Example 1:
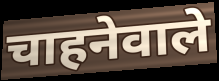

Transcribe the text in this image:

चाहनेवाले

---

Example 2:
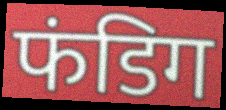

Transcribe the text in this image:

फंडिग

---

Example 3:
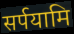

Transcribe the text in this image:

सर्पयामि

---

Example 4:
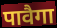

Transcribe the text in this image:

पावैगा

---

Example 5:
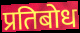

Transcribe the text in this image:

प्रतिबोध